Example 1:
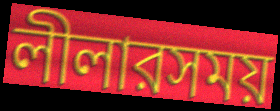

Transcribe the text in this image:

লীলারসময়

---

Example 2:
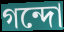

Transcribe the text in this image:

গন্দো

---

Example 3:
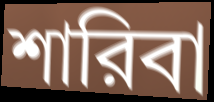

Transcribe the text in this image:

শারিবা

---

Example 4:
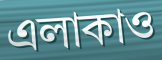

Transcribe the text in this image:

এলাকাও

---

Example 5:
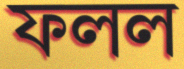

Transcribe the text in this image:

ফলল